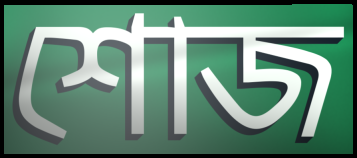
শোজ